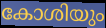
കോശിയും